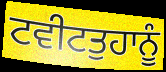
ਟਵੀਟਤੁਹਾਨੂੰ